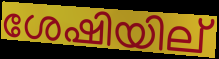
ശേഷിയില്